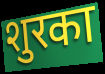
शुरका